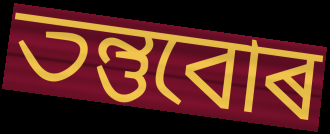
তন্তুবোৰ